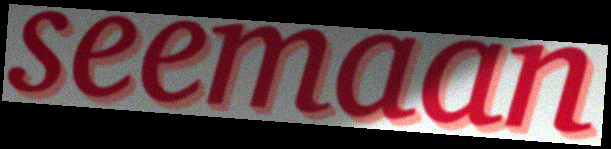
seemaan